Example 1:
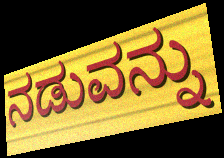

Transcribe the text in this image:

ನಡುವನ್ನು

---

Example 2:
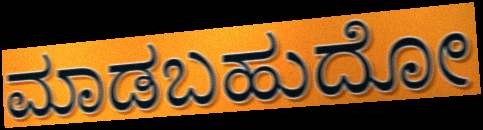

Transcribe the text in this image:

ಮಾಡಬಹುದೋ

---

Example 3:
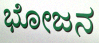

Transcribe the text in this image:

ಭೋಜನ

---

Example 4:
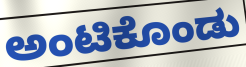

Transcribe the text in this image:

ಅಂಟಿಕೊಂಡು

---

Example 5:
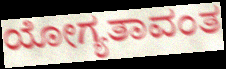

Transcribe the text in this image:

ಯೋಗ್ಯತಾವಂತ